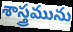
శాస్త్రమును